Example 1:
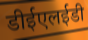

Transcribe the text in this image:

डीईएलईडी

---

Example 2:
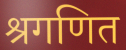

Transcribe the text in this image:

श्रगणित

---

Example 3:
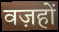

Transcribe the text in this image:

वज़हों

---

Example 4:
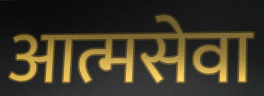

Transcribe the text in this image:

आत्मसेवा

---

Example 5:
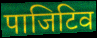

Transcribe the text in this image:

पाजिटिव